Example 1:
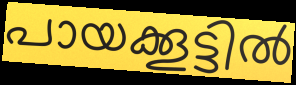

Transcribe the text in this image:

പായക്കൂട്ടിൽ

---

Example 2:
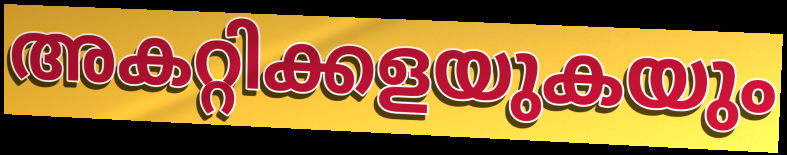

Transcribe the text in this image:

അകറ്റിക്കളയുകയും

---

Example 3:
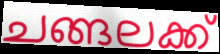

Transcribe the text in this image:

ചങ്ങലക്ക്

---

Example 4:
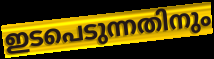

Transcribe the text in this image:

ഇടപെടുന്നതിനും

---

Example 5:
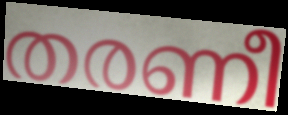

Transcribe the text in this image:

തരണീ